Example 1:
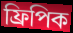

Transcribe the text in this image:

ফ্রিপিক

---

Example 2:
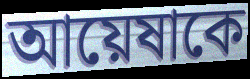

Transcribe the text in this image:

আয়েষাকে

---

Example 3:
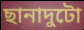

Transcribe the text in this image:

ছানাদুটো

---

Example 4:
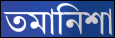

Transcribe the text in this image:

তমানিশা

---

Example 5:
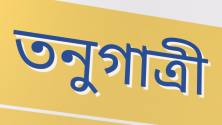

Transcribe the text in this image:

তনুগাত্রী